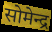
सोमेन्द्र